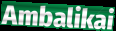
Ambalikai